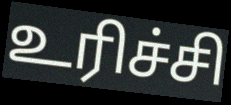
உரிச்சி